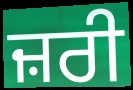
ਜ਼ਰੀ